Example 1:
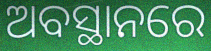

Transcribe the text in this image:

ଅବସ୍ଥାନରେ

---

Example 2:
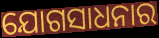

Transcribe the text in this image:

ଯୋଗସାଧନାର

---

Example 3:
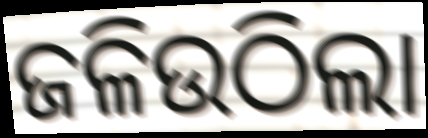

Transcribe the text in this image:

ଜଳିଉଠିଲା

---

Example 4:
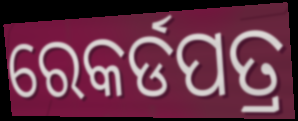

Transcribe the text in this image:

ରେକର୍ଡପତ୍ର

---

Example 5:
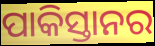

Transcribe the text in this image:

ପାକିସ୍ତାନର